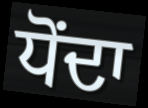
ਧੋਂਦਾ